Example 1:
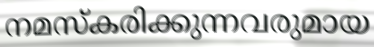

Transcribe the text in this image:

നമസ്കരിക്കുന്നവരുമായ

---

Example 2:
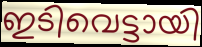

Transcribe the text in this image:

ഇടിവെട്ടായി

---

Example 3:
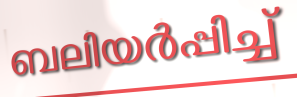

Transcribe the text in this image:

ബലിയർപ്പിച്ച്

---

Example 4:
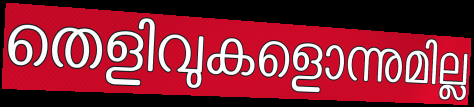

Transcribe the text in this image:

തെളിവുകളൊന്നുമില്ല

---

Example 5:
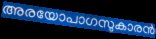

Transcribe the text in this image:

അരയോപാഗസുകാരൻ